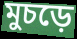
মুচড়ে